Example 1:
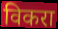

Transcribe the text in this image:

विकरा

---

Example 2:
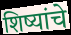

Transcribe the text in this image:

शिष्यांचे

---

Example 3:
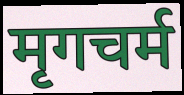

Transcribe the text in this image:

मृगचर्म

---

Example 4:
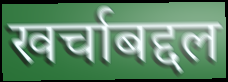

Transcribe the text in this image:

खर्चाबद्दल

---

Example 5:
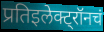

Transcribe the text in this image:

प्रतिइलेक्ट्रॉनचं